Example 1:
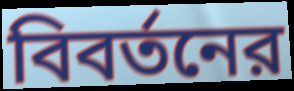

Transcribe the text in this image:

বিবর্তনের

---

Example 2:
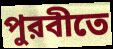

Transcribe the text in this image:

পুরবীতে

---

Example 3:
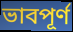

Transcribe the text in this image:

ভাবপূর্ণ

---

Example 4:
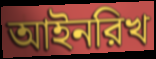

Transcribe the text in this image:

আইনরিখ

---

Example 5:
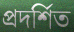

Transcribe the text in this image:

প্রদর্শিত